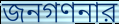
জনগণনার